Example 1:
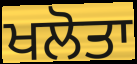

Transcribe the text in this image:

ਖਲੋਤਾ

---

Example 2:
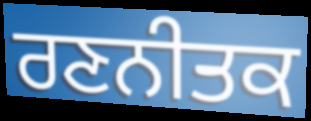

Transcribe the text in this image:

ਰਣਨੀਤਕ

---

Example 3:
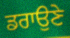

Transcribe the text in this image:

ਡਰਾਉਣੇ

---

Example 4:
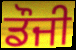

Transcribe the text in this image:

ਡੌਜੀ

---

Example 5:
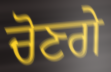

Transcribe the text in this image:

ਚੋਣਗੇ